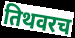
तिथवरच